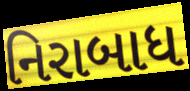
નિરાબાધ